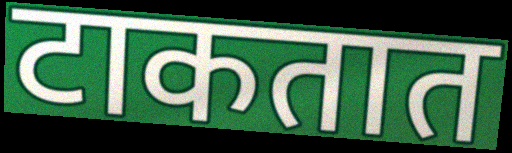
टाकतात